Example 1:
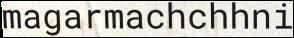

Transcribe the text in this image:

magarmachchhni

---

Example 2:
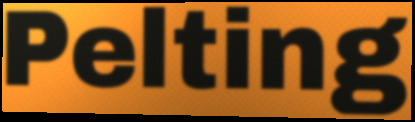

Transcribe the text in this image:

Pelting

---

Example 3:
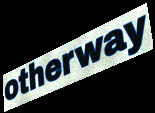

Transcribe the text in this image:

otherway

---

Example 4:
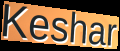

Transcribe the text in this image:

Keshar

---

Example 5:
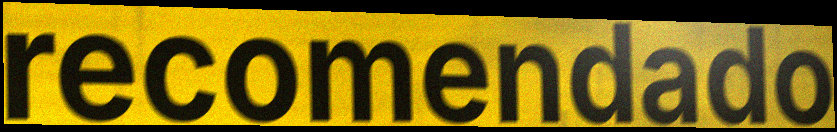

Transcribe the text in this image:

recomendado